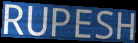
RUPESH